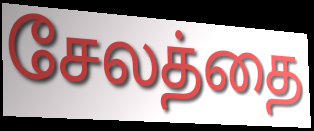
சேலத்தை